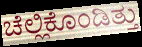
ಚೆಲ್ಲಿಕೊಂಡಿತ್ತು